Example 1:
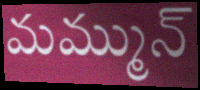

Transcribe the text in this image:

మమ్మున్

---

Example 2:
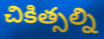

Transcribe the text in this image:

చికిత్సల్ని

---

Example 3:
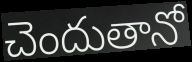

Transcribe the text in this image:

చెందుతానో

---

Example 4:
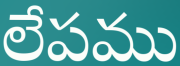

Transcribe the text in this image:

లేపము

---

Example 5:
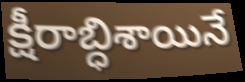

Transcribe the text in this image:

క్షీరాబ్ధిశాయినే